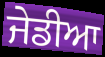
ਜੇਡੀਆ